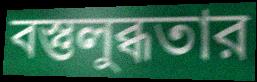
বস্তুলুব্ধতার